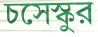
চসেস্কুর